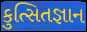
કુત્સિતજ્ઞાન